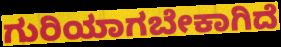
ಗುರಿಯಾಗಬೇಕಾಗಿದೆ